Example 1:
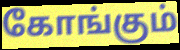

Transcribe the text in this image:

கோங்கும்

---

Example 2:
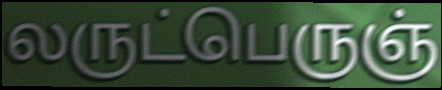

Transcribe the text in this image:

லருட்பெருஞ்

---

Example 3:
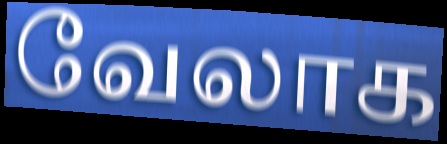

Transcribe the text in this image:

வேலாக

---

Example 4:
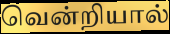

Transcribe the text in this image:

வென்றியால்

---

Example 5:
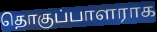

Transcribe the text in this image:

தொகுப்பாளராக